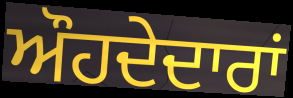
ਔਹਦੇਦਾਰਾਂ